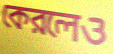
কেরলেও